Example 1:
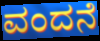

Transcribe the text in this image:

ವಂದನೆ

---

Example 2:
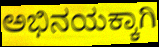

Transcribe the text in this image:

ಅಭಿನಯಕ್ಕಾಗಿ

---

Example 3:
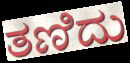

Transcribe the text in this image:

ತಣಿದು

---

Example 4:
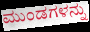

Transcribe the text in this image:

ಮುಂಡಗಳನ್ನು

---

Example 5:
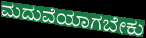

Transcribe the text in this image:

ಮದುವೆಯಾಗಬೇಕು